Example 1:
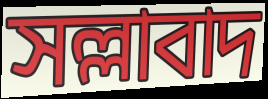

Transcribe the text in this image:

সল্লাবাদ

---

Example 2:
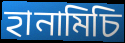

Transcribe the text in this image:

হানামিচি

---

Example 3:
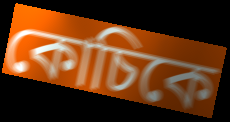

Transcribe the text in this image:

কোচিকে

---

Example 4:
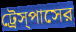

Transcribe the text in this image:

ট্রেস্‌পাসের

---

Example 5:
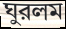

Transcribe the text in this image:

ঘুরলম